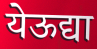
येऊद्या